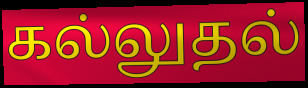
கல்லுதல்